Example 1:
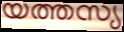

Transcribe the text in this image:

യത്തസ്യ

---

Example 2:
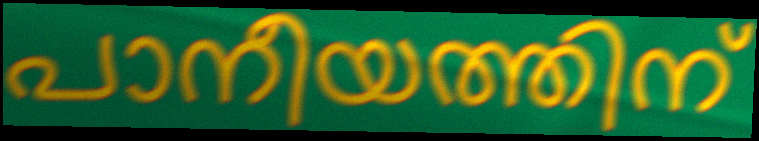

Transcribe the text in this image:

പാനീയത്തിന്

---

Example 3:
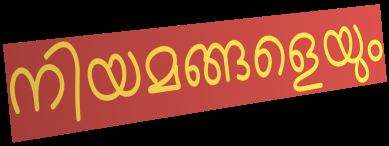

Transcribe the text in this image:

നിയമങ്ങളെയും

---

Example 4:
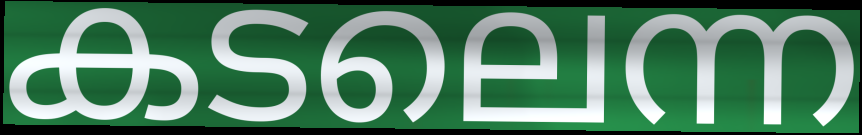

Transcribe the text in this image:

കടലെന്ന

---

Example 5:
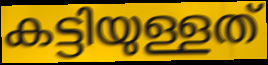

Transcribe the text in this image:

കട്ടിയുള്ളത്